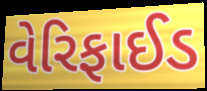
વેરિફાઈડ